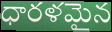
ధారళమైన